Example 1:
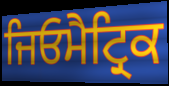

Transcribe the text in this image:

ਜਿਓਮੈਟ੍ਰਿਕ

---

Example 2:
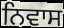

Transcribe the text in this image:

ਨਿਵਾਸ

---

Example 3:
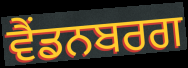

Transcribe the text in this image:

ਵੈਂਡਨਬਰਗ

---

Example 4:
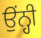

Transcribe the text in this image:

ਉਂਨ੍ਹੀ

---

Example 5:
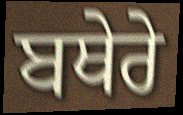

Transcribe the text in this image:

ਬਥੇਰੇ